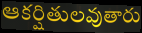
ఆకర్షితులవుతారు